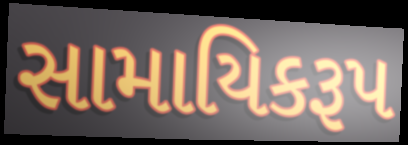
સામાયિકરૂપ